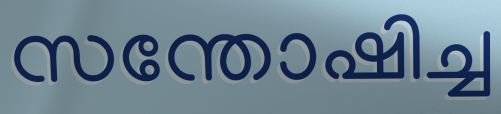
സന്തോഷിച്ച